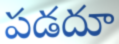
పడదూ